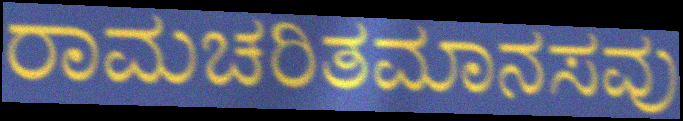
ರಾಮಚರಿತಮಾನಸವು